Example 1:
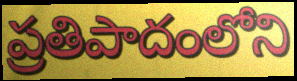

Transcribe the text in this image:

ప్రతిపాదంలోని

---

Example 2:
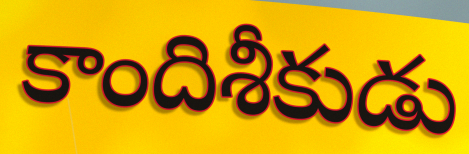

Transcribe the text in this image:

కాందిశీకుడు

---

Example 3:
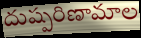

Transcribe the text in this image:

దుష్పరిణామాల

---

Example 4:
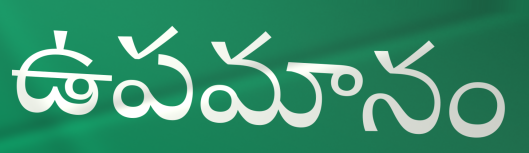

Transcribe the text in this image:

ఉపమానం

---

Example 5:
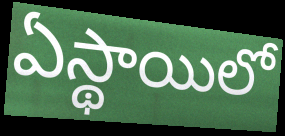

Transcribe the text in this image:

ఏస్థాయిలో